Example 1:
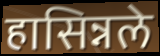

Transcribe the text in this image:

हासिन्नले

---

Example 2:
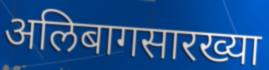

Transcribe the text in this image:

अलिबागसारख्या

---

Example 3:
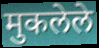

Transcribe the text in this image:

मुकलेले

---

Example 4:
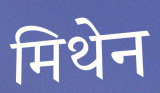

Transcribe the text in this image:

मिथेन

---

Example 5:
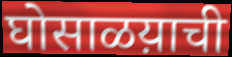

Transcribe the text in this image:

घोसाळय़ाची